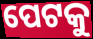
ପେଟକୁ